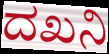
ದಖನಿ